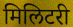
मिलिटरी